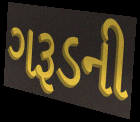
ગરૂડની